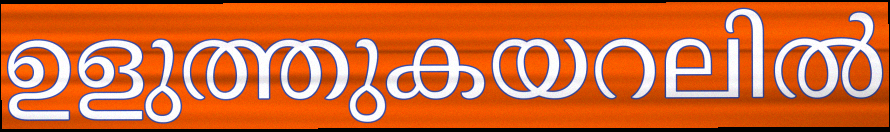
ഉളുത്തുകയറലിൽ